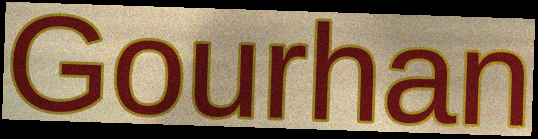
Gourhan